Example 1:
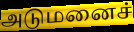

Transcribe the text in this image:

அடுமனைச்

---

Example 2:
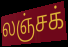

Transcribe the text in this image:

லஞ்சக்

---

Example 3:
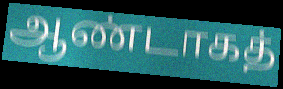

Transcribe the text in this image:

ஆண்டாகத்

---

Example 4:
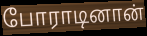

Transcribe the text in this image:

போராடினான்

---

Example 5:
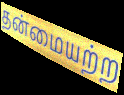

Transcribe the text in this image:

தன்மையற்ற